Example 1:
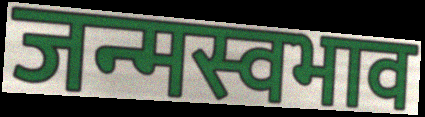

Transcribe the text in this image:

जन्मस्वभाव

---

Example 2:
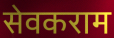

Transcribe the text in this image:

सेवकराम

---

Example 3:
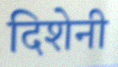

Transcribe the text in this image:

दिशेनी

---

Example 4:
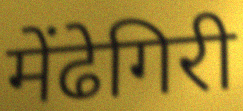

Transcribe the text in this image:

मेंढेगिरी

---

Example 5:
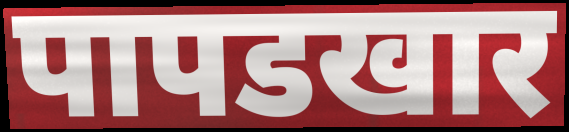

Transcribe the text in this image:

पापडखार